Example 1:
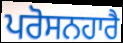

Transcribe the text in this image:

ਪਰੋਸਨਹਾਰੈ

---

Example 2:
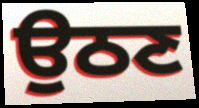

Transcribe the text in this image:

ਉਠਣ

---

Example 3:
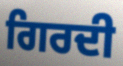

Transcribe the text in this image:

ਗਿਰਦੀ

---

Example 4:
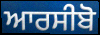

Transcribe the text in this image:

ਆਰਸੀਬੋ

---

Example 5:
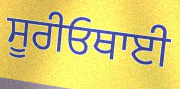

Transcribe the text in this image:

ਸੂਰੀਓਥਾਈ